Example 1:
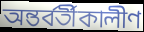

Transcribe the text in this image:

অন্তর্বর্তীকালীণ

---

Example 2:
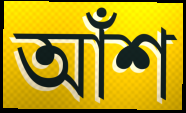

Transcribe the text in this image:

আঁশ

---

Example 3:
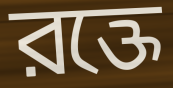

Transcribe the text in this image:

রক্তে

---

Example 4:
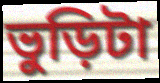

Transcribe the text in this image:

ভুড়িটা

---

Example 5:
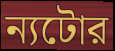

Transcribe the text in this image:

ন্যটোর